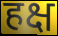
हक्ष